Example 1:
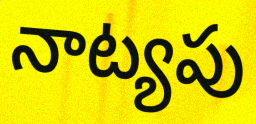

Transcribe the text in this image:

నాట్యపు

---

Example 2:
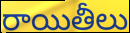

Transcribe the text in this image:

రాయితీలు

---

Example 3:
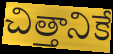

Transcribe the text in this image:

చిత్తానికే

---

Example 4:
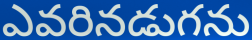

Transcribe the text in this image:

ఎవరినడుగను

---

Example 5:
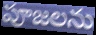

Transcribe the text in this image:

పూజలను